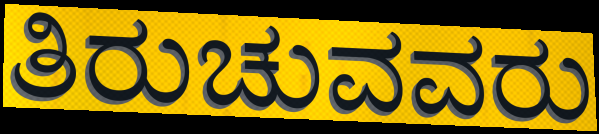
ತಿರುಚುವವರು